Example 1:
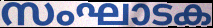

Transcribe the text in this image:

സംഘാടക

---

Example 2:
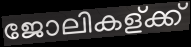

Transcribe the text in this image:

ജോലികള്ക്ക്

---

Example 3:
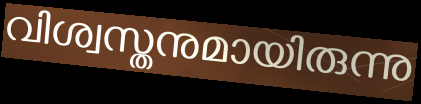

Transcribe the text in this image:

വിശ്വസ്തനുമായിരുന്നു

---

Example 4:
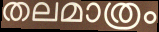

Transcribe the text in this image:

തലമാത്രം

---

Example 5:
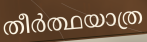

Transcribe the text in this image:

തീർത്ഥയാത്ര